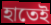
হাতেই